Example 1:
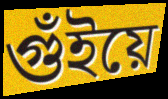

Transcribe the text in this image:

গুঁইয়ে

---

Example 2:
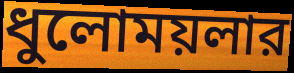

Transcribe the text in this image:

ধুলোময়লার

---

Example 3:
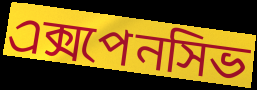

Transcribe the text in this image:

এক্সপেনসিভ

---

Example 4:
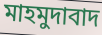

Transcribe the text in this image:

মাহমুদাবাদ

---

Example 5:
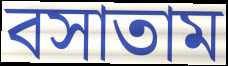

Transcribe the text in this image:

বসাতাম